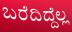
ಬರೆದಿದ್ದೆಲ್ಲ